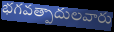
భగవత్పాదులవారు